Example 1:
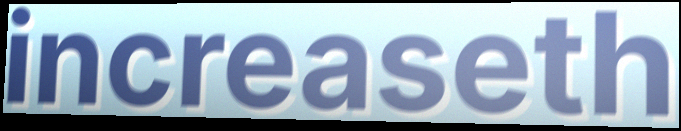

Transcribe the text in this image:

increaseth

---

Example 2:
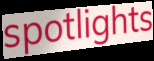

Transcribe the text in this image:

spotlights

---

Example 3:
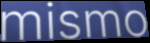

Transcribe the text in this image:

mismo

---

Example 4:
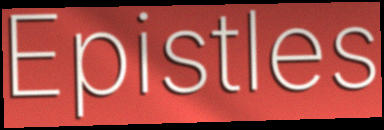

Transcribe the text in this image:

Epistles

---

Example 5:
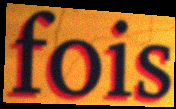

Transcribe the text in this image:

fois